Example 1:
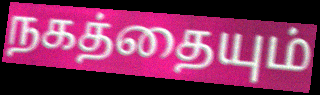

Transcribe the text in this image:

நகத்தையும்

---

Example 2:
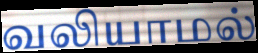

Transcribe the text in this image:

வலியாமல்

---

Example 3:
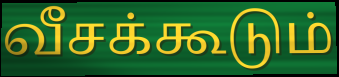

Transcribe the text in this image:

வீசக்கூடும்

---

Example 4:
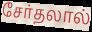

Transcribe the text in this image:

சேர்தலால்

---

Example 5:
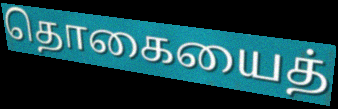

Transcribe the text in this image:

தொகையைத்